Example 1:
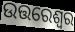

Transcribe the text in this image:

ଉତ୍ତରେଶ୍ୱର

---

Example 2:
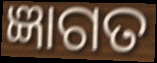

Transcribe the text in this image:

ଜ୍ଞାଗତ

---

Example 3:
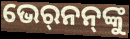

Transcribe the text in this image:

ଭେର୍‍ନନ୍‌ଙ୍କୁ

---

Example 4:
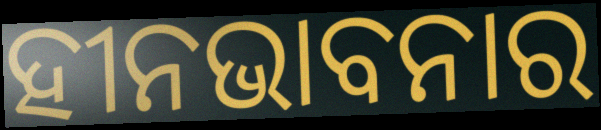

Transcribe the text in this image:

ହୀନଭାବନାର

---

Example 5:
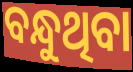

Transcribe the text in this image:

ବନ୍ଧୁଥିବା